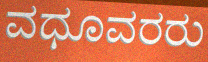
ವಧೂವರರು